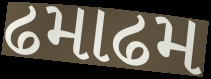
ઢમાઢમ